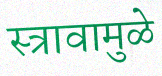
स्त्रावामुळे